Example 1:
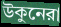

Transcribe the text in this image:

উকুনেরা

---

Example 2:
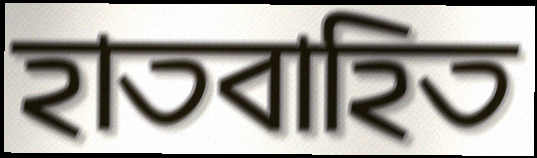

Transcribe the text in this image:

হাতবাহিত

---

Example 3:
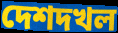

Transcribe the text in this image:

দেশদখল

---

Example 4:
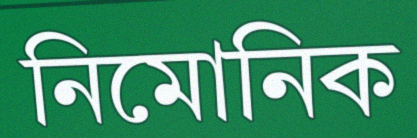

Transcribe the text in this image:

নিমোনিক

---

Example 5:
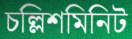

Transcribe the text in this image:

চল্লিশমিনিট